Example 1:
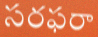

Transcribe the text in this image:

సరఫరా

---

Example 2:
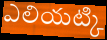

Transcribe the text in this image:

ఎలియట్కి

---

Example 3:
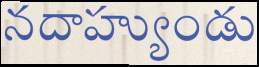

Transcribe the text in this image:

నదాహ్యుండు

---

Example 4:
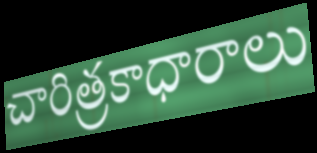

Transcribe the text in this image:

చారిత్రకాధారాలు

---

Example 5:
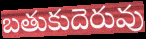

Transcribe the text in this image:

బతుకుదెరువు